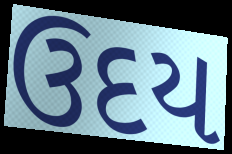
ઉદય